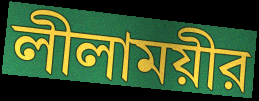
লীলাময়ীর